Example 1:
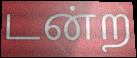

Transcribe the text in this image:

டன்ற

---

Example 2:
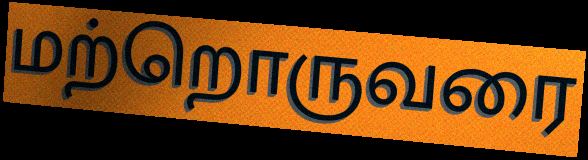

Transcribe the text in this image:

மற்றொருவரை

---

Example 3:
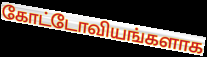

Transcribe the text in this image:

கோட்டோவியங்களாக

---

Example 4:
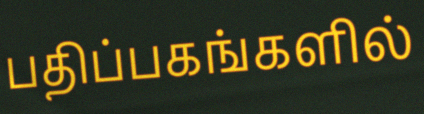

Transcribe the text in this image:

பதிப்பகங்களில்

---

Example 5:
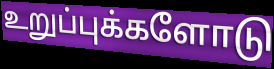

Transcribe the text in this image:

உறுப்புக்களோடு